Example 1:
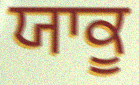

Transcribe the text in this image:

ਯਾਕੂ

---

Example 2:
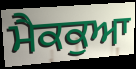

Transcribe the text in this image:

ਮੈਕਕੁਆ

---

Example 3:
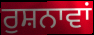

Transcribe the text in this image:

ਰੁਸ਼ਨਾਵਾਂ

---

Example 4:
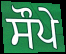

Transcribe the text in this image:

ਸੌਪੇ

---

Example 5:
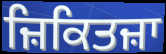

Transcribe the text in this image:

ਜ਼ਿਕਿਤਜ਼ਾ